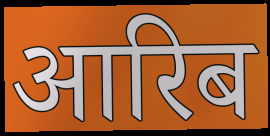
आरिब